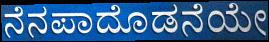
ನೆನಪಾದೊಡನೆಯೇ